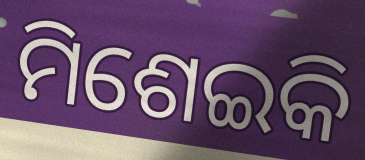
ମିଶେଇକି